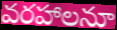
వరహాలనూ